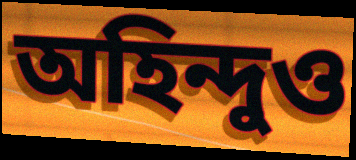
অহিন্দুও